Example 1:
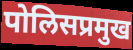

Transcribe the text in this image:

पोलिसप्रमुख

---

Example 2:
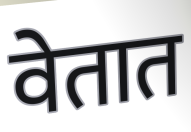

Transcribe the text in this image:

वेतात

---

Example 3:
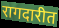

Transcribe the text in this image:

रागदारीत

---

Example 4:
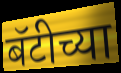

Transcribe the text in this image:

बॅटीच्या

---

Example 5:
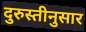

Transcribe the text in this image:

दुरुस्तीनुसार